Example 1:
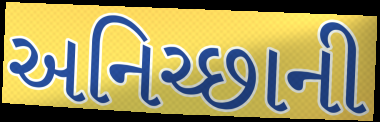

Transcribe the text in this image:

અનિચ્છાની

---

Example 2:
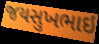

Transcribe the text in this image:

જયસુખભાઇ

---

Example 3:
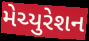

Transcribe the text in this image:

મેચ્યુરેશન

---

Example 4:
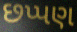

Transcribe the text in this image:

છપ્પણ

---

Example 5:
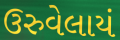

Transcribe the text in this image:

ઉરુવેલાયં